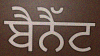
ਬੈਨੈੱਟ